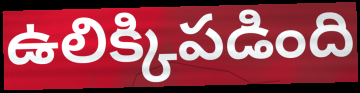
ఉలిక్కిపడింది